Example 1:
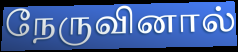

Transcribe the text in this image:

நேருவினால்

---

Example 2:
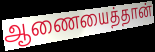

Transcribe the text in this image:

ஆணையைத்தான்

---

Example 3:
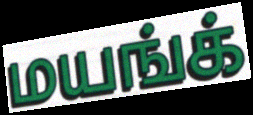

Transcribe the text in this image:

மயங்க்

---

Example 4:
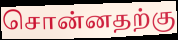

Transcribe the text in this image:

சொன்னதற்கு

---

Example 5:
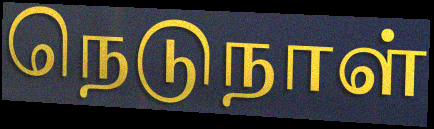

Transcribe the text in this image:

நெடுநாள்